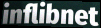
inflibnet